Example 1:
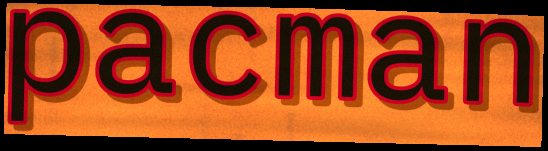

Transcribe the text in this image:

pacman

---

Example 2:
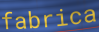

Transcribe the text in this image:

fabrica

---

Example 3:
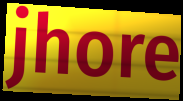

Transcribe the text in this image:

jhore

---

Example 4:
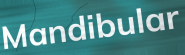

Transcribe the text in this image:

Mandibular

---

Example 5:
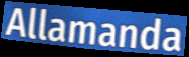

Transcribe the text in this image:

Allamanda